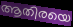
ആതിരയെ